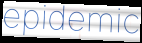
epidemic